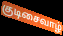
குடிசைவாழ்